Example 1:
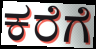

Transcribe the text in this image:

ಕರೆಗೆ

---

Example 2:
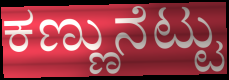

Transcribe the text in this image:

ಕಣ್ಣುನೆಟ್ಟು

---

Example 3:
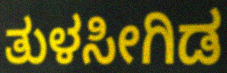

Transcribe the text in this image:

ತುಳಸೀಗಿಡ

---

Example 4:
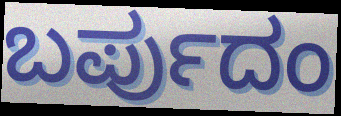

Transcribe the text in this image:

ಬರ್ಪುದಂ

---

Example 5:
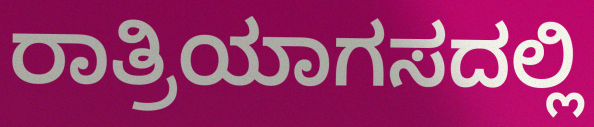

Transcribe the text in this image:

ರಾತ್ರಿಯಾಗಸದಲ್ಲಿ